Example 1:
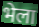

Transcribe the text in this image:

भेला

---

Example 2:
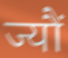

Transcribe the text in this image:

ज्यौं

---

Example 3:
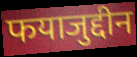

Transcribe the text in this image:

फयाजुद्दीन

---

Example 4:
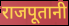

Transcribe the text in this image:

राजपूतानी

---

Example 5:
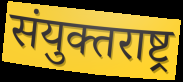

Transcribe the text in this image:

संयुक्तराष्ट्र